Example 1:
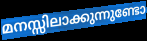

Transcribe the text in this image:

മനസ്സിലാക്കുന്നുണ്ടോ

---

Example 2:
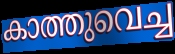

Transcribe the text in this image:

കാത്തുവെച്ച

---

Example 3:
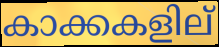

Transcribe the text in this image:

കാക്കകളില്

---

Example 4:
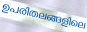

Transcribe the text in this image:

ഉപരിതലങ്ങളിലെ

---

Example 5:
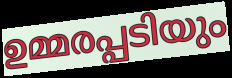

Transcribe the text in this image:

ഉമ്മരപ്പടിയും